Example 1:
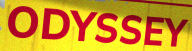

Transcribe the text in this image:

ODYSSEY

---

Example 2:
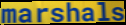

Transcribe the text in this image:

marshals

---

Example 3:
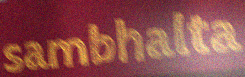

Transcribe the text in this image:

sambhalta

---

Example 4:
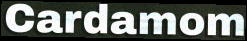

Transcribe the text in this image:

Cardamom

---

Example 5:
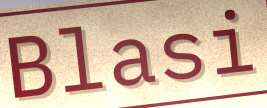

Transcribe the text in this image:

Blasi